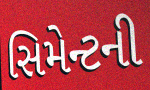
સિમેન્ટની